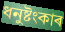
ধনুষ্টংকাৰ